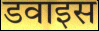
डवाइस